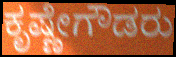
ಕೃಷ್ಣೇಗೌಡರು